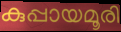
കുപ്പായമൂരി